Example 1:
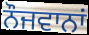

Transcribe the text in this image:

ਨੌਜਵਾਨਾਂ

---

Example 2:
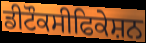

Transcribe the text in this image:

ਡੀਟੌਕਸੀਫਿਕੇਸ਼ਨ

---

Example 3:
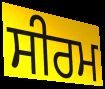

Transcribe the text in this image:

ਸੀਰਮ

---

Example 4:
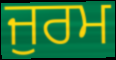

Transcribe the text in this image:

ਜੁਰਮ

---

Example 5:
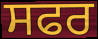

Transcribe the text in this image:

ਸਫਰ